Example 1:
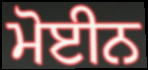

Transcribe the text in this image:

ਮੋਈਨ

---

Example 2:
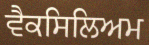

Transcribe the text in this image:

ਵੈਕਸਿਲਿਅਮ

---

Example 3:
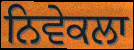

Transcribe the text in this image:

ਨਿਵੇਕਲਾ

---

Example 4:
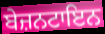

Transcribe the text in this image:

ਬੇਜ਼ਨਟਾਇਨ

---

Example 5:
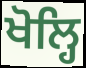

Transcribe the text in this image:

ਖੋਲ੍ਹਿ